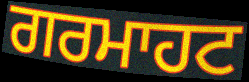
ਗਰਮਾਹਟ